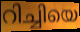
റിച്ചിയെ